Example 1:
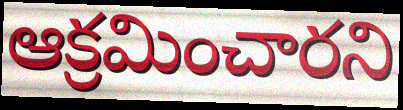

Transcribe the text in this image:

ఆక్రమించారని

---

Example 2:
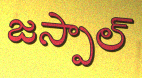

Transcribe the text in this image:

జస్పాల్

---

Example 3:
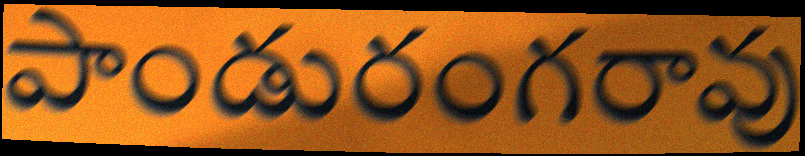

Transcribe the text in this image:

పాండురంగరావు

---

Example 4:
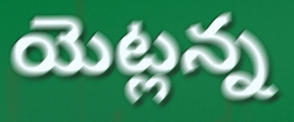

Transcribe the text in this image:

యెట్లన్న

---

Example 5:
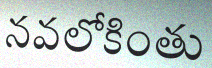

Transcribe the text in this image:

నవలోకింతు